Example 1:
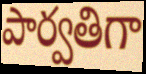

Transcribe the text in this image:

పార్వతిగా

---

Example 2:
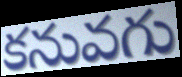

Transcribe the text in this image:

కనువగు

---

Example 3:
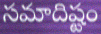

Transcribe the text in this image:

సమాదిష్టం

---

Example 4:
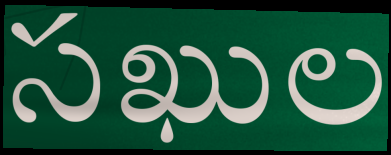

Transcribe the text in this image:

సఖుల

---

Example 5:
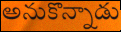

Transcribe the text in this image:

అనుకొన్నాడు